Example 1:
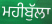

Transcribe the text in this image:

ਮਹੀਬੁੱਲਾ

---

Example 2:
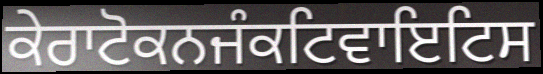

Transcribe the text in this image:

ਕੇਰਾਟੋਕਨਜੰਕਟਿਵਾਇਟਿਸ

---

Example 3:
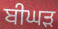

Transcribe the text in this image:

ਬੀਘੜ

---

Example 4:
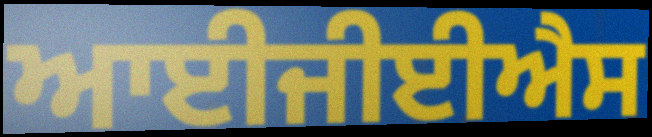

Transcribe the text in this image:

ਆਈਜੀਈਐਸ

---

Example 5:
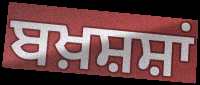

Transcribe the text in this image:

ਬਖ਼ਸ਼ਸ਼ਾਂ